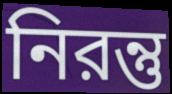
নিরন্তু